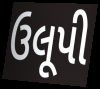
ઉલૂપી